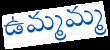
ఉమ్మమ్మ